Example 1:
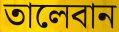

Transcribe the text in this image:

তালেবান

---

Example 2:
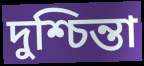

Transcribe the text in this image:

দুশ্চিন্তা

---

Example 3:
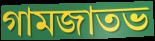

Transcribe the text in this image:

গামজাতভ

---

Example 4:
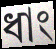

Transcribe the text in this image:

ধাং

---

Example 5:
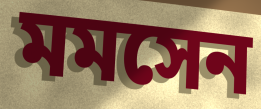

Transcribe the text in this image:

মমসেন